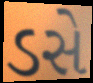
ડસે